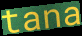
tana